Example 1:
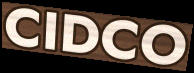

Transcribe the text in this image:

CIDCO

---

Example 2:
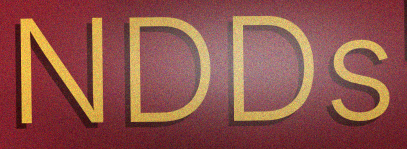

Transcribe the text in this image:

NDDs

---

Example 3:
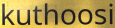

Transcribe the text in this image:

kuthoosi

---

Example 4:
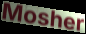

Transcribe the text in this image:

Mosher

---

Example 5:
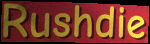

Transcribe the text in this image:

Rushdie